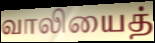
வாலியைத்